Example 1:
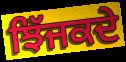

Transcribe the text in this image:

ਝਿੱਜਕਦੇ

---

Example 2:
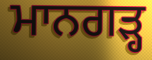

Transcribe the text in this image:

ਮਾਨਗੜ੍ਹ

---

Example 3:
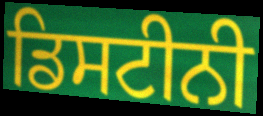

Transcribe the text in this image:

ਡਿਸਟੀਨੀ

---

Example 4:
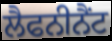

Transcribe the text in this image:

ਲੈਫਨੀਨੈਂਟ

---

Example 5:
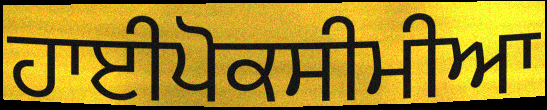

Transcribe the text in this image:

ਹਾਈਪੋਕਸੀਮੀਆ